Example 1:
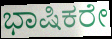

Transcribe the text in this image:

ಭಾಷಿಕರೇ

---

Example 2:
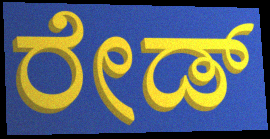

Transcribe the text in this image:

ರೇಡ್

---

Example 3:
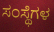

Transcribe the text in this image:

ಸಂಸ್ಥೆಗಳ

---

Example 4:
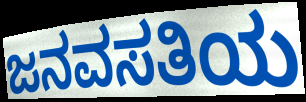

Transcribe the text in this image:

ಜನವಸತಿಯ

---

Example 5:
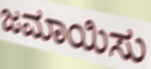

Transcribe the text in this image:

ಜಮಾಯಿಸು